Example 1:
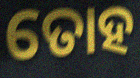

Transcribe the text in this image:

ତୋହ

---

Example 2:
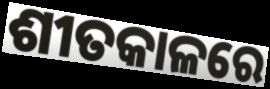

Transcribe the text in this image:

ଶୀତକାଳରେ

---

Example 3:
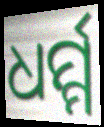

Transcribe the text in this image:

ଧର୍ମ୍ମ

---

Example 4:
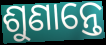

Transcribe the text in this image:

ଶୁଣାନ୍ତେ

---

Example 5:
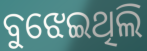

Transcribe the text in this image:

ବୁଝେଇଥିଲି